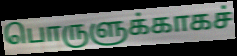
பொருளுக்காகச்